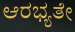
ಆರಭ್ಯತೇ